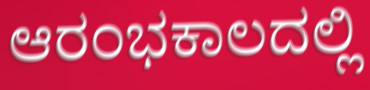
ಆರಂಭಕಾಲದಲ್ಲಿ